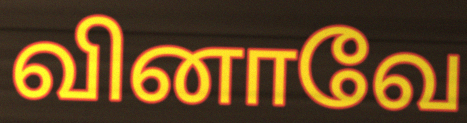
வினாவே